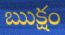
ఋక్షం